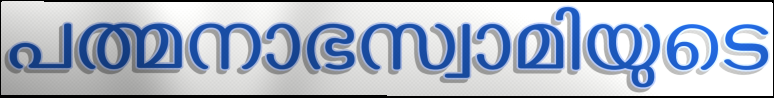
പത്മനാഭസ്വാമിയുടെ